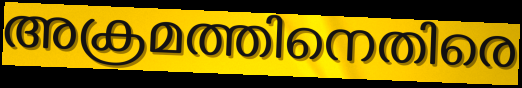
അക്രമത്തിനെതിരെ